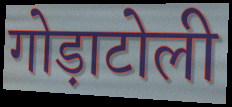
गोड़ाटोली